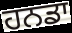
ਹਨਡਾ